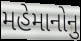
મહેમાનોનુ